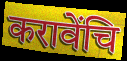
करावेंचि